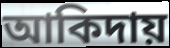
আকিদায়